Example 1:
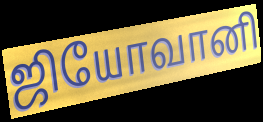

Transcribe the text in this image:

ஜியோவானி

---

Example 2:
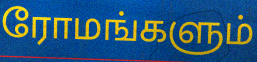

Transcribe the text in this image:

ரோமங்களும்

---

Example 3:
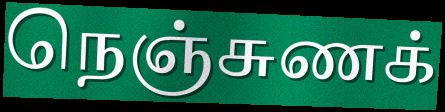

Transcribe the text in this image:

நெஞ்சுணக்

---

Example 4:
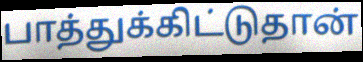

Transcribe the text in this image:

பாத்துக்கிட்டுதான்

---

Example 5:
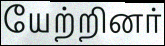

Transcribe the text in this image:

யேற்றினர்